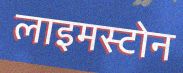
लाइमस्टोन